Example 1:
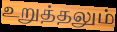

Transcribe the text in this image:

உறுத்தலும்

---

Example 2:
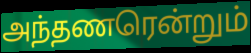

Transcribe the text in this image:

அந்தணரென்றும்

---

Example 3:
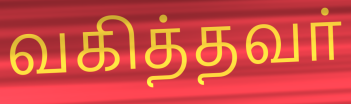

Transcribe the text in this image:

வகித்தவர்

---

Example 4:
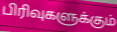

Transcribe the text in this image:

பிரிவுகளுக்கும்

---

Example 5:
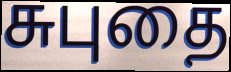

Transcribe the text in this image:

சுபுதை